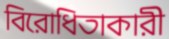
বিরোধিতাকারী